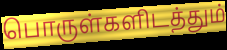
பொருள்களிடத்தும்